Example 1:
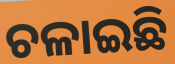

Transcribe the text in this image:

ଚଳାଇଛି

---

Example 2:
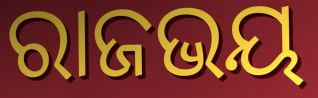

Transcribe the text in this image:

ରାଜଭୟ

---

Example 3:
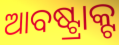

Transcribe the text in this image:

ଆବଷ୍ଟ୍ରାକ୍ଟ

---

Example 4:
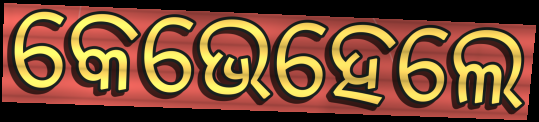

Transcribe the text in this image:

କେଭେହେଲେ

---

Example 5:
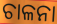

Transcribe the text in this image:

ଚାଳନା